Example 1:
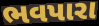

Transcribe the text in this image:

ભવપારા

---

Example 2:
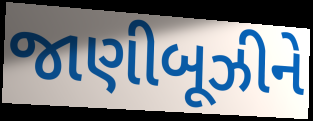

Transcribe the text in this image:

જાણીબૂઝીને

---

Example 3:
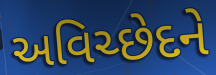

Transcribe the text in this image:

અવિચ્છેદને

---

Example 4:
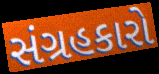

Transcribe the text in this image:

સંગ્રહકારો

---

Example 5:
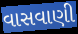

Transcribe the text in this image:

વાસવાણી